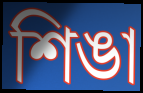
শিঙা